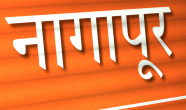
नागापूर